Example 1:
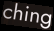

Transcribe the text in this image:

ching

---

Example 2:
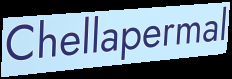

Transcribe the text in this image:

Chellapermal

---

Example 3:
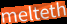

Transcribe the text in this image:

melteth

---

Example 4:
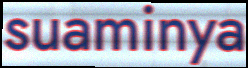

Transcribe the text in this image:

suaminya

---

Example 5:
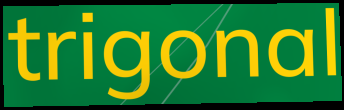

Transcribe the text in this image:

trigonal